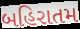
બહિરાતમ